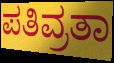
ಪತಿವ್ರತಾ